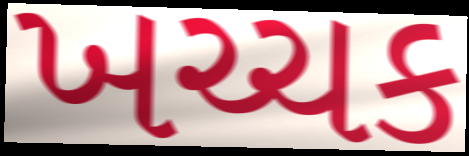
ખચ્ચક